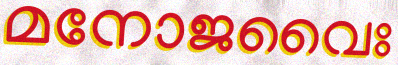
മനോജവൈഃ